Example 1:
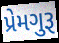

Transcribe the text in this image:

પ્રેમગુરૂ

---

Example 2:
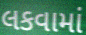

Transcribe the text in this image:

લકવામાં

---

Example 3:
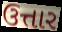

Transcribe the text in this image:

ઉત્તાર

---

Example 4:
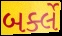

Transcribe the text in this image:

બર્ક્લે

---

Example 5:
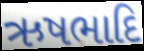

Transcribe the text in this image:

ઋષભાદિ